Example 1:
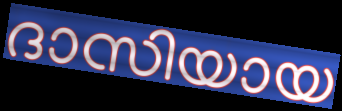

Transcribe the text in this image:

ദാസിയായ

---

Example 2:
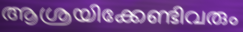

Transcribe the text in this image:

ആശ്രയിക്കേണ്ടിവരും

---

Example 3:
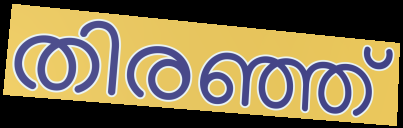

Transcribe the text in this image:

തിരഞ്ഞ്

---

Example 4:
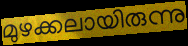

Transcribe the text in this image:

മുഴക്കലായിരുന്നു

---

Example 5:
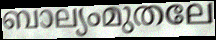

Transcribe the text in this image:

ബാല്യംമുതലേ